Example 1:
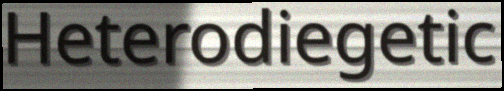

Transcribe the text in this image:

Heterodiegetic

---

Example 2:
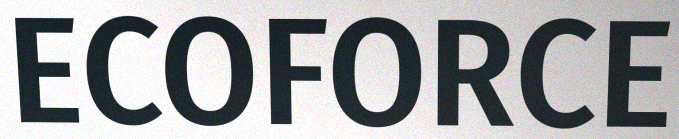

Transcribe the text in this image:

ECOFORCE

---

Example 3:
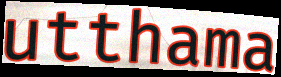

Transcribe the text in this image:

utthama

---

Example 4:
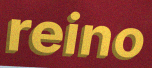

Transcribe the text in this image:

reino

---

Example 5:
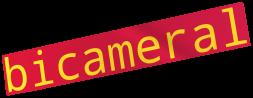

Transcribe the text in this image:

bicameral